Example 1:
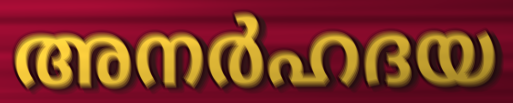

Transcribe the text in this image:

അനർഹദയ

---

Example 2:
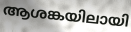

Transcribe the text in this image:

ആശങ്കയിലായി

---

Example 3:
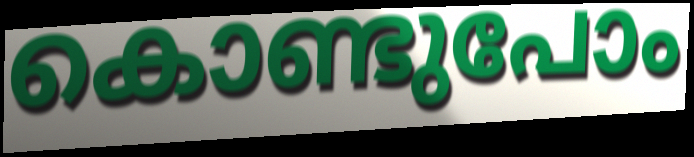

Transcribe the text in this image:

കൊണ്ടുപോം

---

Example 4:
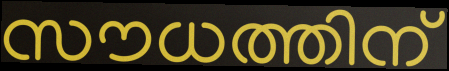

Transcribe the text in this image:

സൗധത്തിന്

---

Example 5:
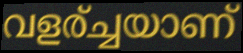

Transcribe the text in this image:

വളര്ച്ചയാണ്